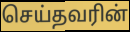
செய்தவரின்